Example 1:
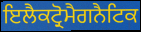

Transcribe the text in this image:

ਇਲੈਕਟ੍ਰੋਮੈਗਨੈਟਿਕ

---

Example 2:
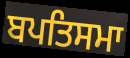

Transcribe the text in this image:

ਬਪਤਿਸਮਾ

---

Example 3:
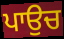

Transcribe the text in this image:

ਪਾਉਚ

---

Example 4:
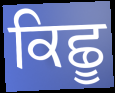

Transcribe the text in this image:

ਕਿਛੂ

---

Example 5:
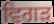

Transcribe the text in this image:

ਵਿਗੜ